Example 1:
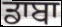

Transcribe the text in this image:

ਡਾਬਾ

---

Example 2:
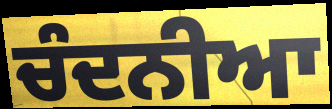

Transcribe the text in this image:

ਚੰਦਨੀਆ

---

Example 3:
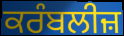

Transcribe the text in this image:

ਕਰੰਬਲੀਜ਼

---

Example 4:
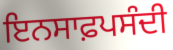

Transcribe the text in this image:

ਇਨਸਾਫ਼ਪਸੰਦੀ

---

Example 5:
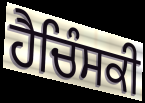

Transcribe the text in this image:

ਹੈਚਿੰਸਕੀ